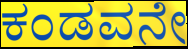
ಕಂಡವನೇ